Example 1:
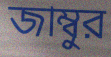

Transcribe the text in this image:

জাম্বুর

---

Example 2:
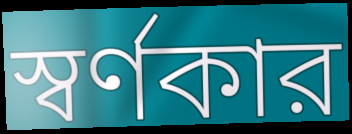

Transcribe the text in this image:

স্বর্ণকার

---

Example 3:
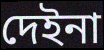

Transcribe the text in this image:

দেইনা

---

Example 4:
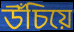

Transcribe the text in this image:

উঁচিয়ে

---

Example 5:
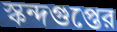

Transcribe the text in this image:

স্কন্দগুপ্তের